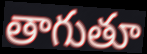
తాగుతూ